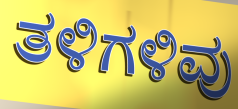
ತಳಿಗಳಿವು